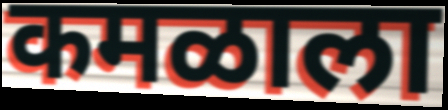
कमळाला